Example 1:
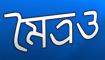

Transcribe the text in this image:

মৈত্রও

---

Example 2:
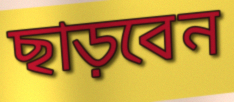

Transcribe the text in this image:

ছাড়বেন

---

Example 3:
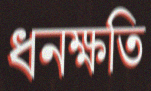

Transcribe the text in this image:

ধনক্ষতি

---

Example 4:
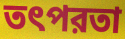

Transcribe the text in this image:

তৎপরতা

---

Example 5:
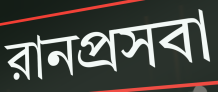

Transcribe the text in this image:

রানপ্রসবা